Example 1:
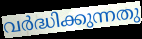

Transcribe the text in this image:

വർദ്ധിക്കുന്നതു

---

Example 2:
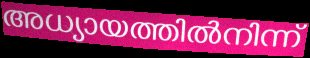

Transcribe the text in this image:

അധ്യായത്തിൽനിന്ന്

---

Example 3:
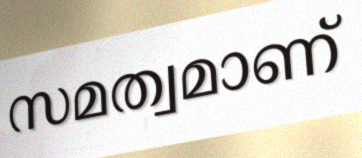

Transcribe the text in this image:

സമത്വമാണ്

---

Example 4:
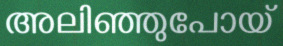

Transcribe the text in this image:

അലിഞ്ഞുപോയ്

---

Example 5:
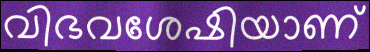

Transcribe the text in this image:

വിഭവശേഷിയാണ്